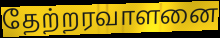
தேற்றரவாளனை